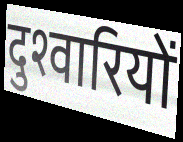
दुश्वारियों